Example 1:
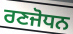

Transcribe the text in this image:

ਰਣਜੋਧਨ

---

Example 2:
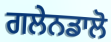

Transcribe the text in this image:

ਗਲੇਨਡਾਲੋ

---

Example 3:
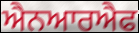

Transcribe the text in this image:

ਐਨਆਰਐਫ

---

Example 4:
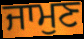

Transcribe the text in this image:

ਜਾਮੁਣ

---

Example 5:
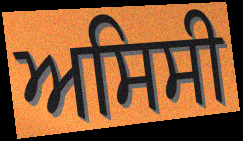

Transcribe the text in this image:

ਅਸਿਸੀ